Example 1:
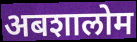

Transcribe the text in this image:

अबशालोम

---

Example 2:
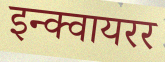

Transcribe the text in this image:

इन्क्वायरर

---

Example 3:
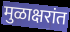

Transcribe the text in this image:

मुळाक्षरांत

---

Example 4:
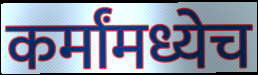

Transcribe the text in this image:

कर्मांमध्येच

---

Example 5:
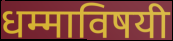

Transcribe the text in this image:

धम्माविषयी